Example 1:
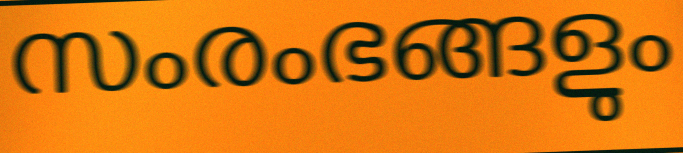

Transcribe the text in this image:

സംരംഭങ്ങളും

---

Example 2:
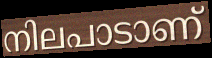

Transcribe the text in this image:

നിലപാടാണ്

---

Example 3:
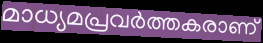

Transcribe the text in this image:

മാധ്യമപ്രവർത്തകരാണ്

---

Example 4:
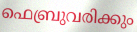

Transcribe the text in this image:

ഫെബ്രുവരിക്കും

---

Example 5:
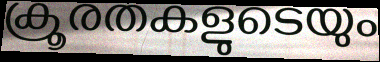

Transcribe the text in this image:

ക്രൂരതകളുടെയും